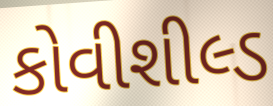
કોવીશીલ્ડ